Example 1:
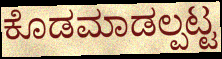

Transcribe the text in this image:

ಕೊಡಮಾಡಲ್ಪಟ್ಟ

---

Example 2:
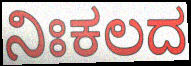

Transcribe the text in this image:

ನಿಃಕಲದ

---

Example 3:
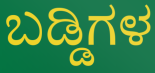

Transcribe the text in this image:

ಬಡ್ಡಿಗಳ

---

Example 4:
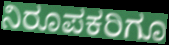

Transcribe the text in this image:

ನಿರೂಪಕರಿಗೂ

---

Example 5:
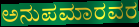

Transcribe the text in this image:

ಅನುಪಮಾರವರ